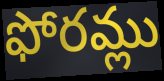
ఫోరమ్లు